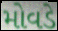
મોવડે